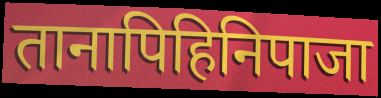
तानापिहिनिपाजा